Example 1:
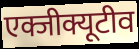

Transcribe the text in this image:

एक्जीक्यूटीव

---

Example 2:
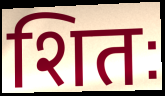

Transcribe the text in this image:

शितः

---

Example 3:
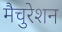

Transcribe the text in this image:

मैचुरेशन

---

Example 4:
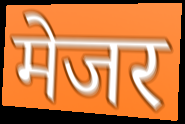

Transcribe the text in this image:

मेजर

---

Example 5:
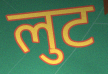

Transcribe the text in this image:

लुट